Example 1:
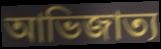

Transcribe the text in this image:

আভিজাত্য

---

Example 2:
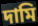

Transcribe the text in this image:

দামি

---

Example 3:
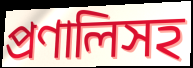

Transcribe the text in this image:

প্রণালিসহ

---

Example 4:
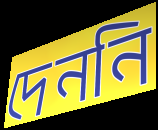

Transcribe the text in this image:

দেননি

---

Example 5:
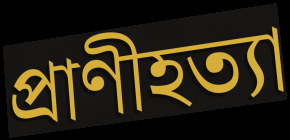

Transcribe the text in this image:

প্রাণীহত্যা